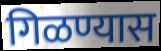
गिळण्यास